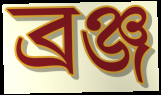
ব্ৰঞ্জ